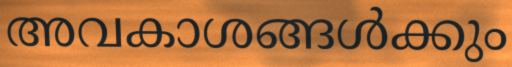
അവകാശങ്ങൾക്കും